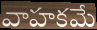
వాహకమే